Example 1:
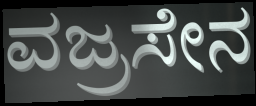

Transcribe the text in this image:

ವಜ್ರಸೇನ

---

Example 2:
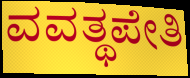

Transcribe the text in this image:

ವವತ್ಥಪೇತಿ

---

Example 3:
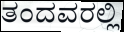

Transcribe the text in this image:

ತಂದವರಲ್ಲಿ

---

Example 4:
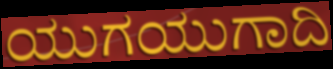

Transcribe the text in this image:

ಯುಗಯುಗಾದಿ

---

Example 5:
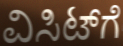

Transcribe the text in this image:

ವಿಸಿಟ್‌ಗೆ